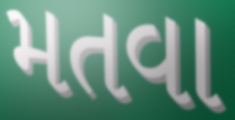
મતવા